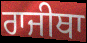
ਰਾਜੀਥਾ